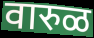
वारुळ